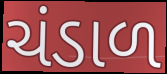
ચંડાળ